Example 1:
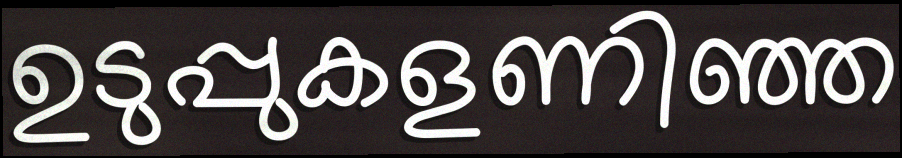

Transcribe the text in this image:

ഉടുപ്പുകളണിഞ്ഞ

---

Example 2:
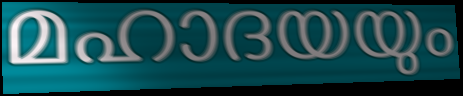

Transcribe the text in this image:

മഹാദയയും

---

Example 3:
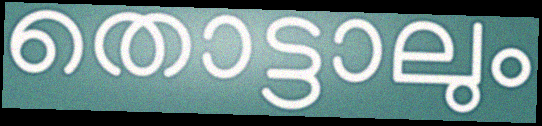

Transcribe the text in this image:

തൊട്ടാലും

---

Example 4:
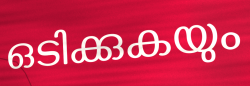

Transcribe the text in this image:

ഒടിക്കുകയും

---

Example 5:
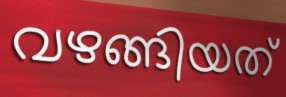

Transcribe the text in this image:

വഴങ്ങിയത്